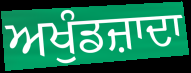
ਅਖੁੰਡਜ਼ਾਦਾ